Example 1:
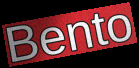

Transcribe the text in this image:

Bento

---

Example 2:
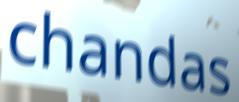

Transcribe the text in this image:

chandas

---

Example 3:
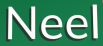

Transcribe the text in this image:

Neel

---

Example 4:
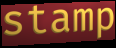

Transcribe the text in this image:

stamp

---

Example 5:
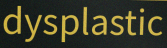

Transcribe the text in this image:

dysplastic